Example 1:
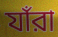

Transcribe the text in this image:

যাঁরা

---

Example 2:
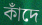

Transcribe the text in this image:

কাঁদে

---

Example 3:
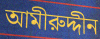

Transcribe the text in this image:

আমীরুদ্দীন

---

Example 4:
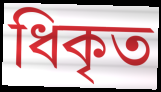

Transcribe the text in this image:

ধিকৃত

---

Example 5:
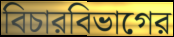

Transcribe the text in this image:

বিচারবিভাগের